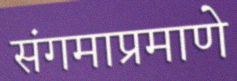
संगमाप्रमाणे